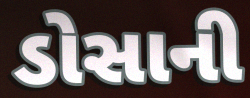
ડોસાની